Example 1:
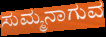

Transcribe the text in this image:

ಸುಮ್ಮನಾಗುವ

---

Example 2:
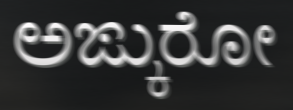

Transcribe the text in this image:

ಅಙ್ಕುರೋ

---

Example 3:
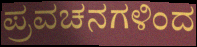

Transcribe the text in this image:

ಪ್ರವಚನಗಳಿಂದ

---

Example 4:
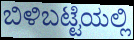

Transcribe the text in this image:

ಬಿಳಿಬಟ್ಟೆಯಲ್ಲಿ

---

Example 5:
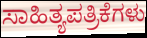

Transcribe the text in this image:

ಸಾಹಿತ್ಯಪತ್ರಿಕೆಗಳು